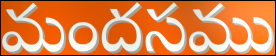
మందసము